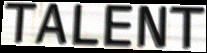
TALENT